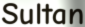
Sultan